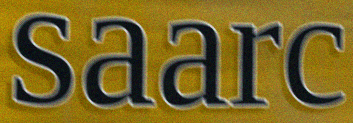
saarc